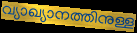
വ്യാഖ്യാനത്തിനുള്ള